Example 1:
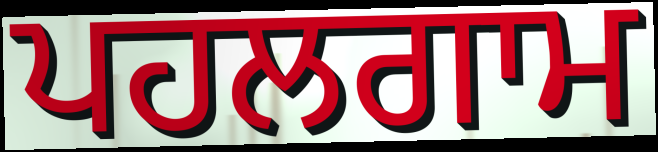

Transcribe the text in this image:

ਪਹਲਗਾਮ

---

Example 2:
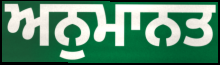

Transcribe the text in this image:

ਅਨੁਮਾਨਤ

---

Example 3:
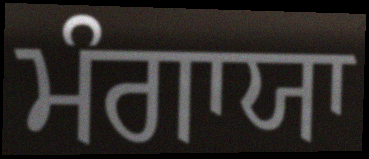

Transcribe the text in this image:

ਮੰਗਾਯਾ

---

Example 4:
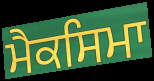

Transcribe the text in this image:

ਮੈਕਸਿਮਾ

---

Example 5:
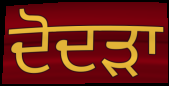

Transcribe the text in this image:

ਦੋਦੜਾ